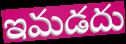
ఇమడదు